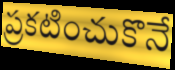
ప్రకటించుకొనే